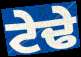
ਟੇਢੇ